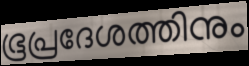
ഭൂപ്രദേശത്തിനും